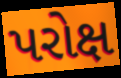
પરોક્ષ